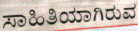
ಸಾಹಿತಿಯಾಗಿರುವ